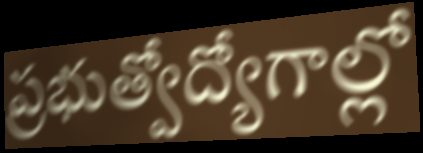
ప్రభుత్వోద్యోగాల్లో